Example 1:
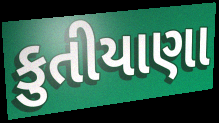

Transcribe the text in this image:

કુતીયાણા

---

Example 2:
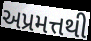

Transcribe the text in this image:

અપ્રમત્તથી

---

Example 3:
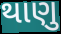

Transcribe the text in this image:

થાણુ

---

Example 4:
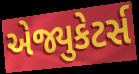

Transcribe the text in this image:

એજ્યુકેટર્સ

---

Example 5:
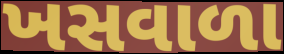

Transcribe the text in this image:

ખસવાળા